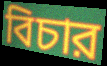
বিচার